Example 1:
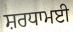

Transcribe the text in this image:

ਸ਼ਰਧਾਮਈ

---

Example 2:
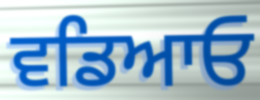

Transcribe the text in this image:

ਵਡਿਆਓ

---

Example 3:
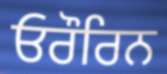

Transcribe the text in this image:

ਓਰੌਰਿਨ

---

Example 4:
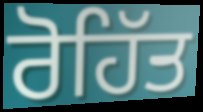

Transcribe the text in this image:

ਰੋਹਿੱਤ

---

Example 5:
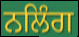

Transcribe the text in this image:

ਨਲਿੰਗ